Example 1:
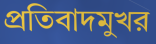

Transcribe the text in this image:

প্রতিবাদমুখর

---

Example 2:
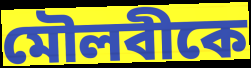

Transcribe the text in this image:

মৌলবীকে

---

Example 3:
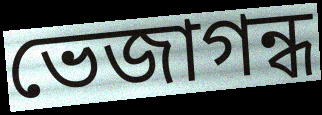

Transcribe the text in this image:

ভেজাগন্ধ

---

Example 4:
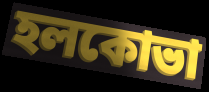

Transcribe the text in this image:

হলকোভা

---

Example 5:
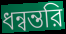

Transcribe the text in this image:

ধন্বন্তরি